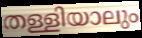
തള്ളിയാലും